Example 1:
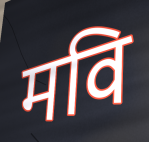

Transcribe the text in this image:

मवि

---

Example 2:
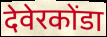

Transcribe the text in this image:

देवेरकोंडा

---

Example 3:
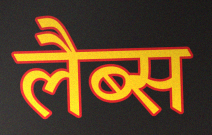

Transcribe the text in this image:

लैब्स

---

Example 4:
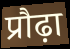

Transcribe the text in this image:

प्रौढ़ा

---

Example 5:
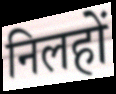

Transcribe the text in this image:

निलहों